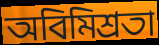
অবিমিশ্রতা